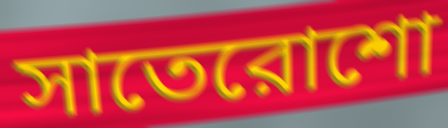
সাতেরোশো